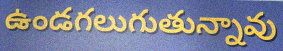
ఉండగలుగుతున్నావు